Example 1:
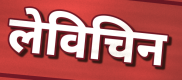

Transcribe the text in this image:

लेविचिन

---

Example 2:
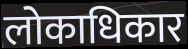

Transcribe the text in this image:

लोकाधिकार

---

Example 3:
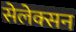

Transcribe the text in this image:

सेलेक्सन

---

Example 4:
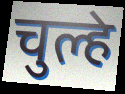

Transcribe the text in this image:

चुल्हे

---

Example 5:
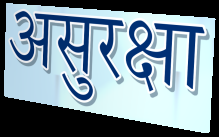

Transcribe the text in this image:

असुरक्षा